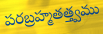
పరబ్రహ్మతత్త్వము